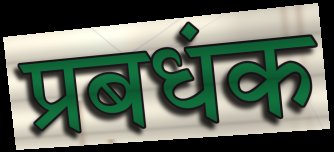
प्रबधंक